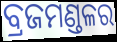
ବ୍ରଜମଣ୍ଡଳର